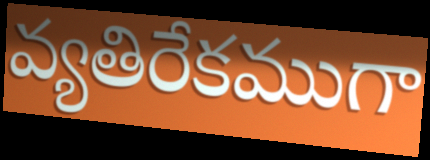
వ్యతిరేకముగా